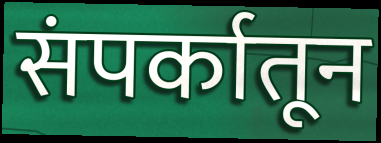
संपर्कातून